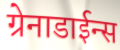
ग्रेनाडाईन्स